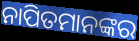
ନାପିତମାନଙ୍କର